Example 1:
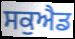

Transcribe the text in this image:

ਸਕੁਐਡ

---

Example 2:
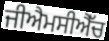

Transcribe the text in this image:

ਜੀਐਮਸੀਐੱਚ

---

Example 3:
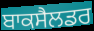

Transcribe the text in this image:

ਬਾਕਸੈਲਡਰ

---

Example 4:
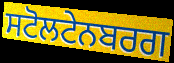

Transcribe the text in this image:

ਸਟੋਲਟੇਨਬਰਗ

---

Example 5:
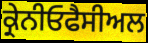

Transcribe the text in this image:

ਕ੍ਰੇਨੀਓਫੈਸੀਅਲ